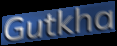
Gutkha